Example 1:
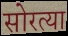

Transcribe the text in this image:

सोरत्या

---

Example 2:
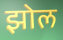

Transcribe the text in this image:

झोल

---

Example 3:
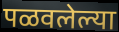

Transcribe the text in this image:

पळवलेल्या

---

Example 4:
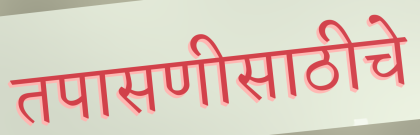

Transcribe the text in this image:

तपासणीसाठीचे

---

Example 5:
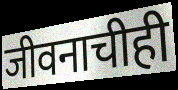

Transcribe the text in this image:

जीवनाचीही